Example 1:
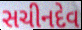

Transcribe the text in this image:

સચીનદેવ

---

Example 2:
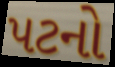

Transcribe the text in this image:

પટનો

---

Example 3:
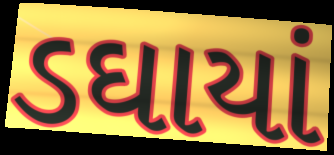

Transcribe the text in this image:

ડઘાયાં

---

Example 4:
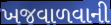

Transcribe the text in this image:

ખજવાળવાની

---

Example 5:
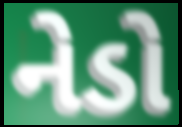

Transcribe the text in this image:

નેડો